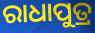
ରାଧାପୁତ୍ର